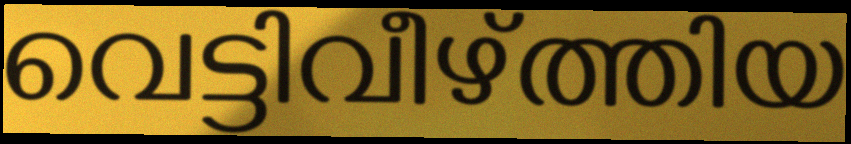
വെട്ടിവീഴ്ത്തിയ